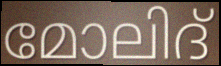
മോലിദ്